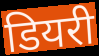
डियरी